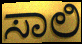
ಸಾಲಿ